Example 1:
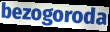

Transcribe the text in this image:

bezogoroda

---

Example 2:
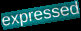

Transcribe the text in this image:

expressed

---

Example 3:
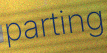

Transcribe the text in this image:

parting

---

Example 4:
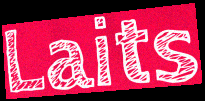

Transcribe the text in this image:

Laits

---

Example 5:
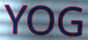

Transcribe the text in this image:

YOG